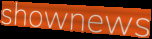
shownews